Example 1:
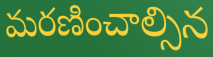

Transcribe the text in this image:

మరణించాల్సిన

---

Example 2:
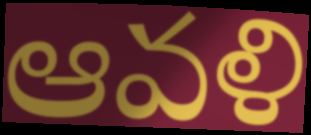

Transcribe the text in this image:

ఆవళి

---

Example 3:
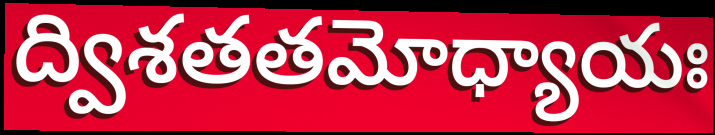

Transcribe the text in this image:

ద్విశతతమోధ్యాయః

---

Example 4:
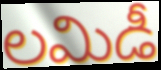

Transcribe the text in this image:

లమిడీ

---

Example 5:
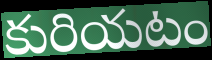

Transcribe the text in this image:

కురియటం